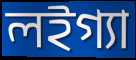
লইগ্যা